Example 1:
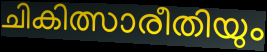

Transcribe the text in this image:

ചികിത്സാരീതിയും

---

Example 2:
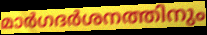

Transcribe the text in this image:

മാർഗദർശനത്തിനും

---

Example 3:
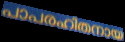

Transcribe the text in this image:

പാപരഹിതനായ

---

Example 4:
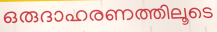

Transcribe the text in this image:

ഒരുദാഹരണത്തിലൂടെ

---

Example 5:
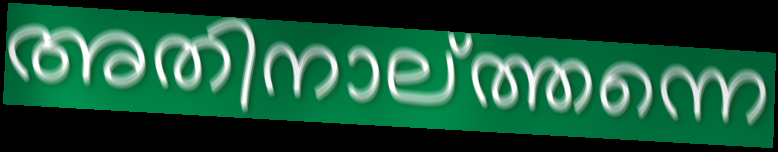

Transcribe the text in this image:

അതിനാല്ത്തന്നെ